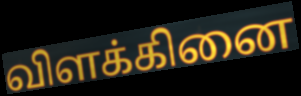
விளக்கினை